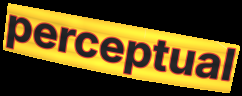
perceptual